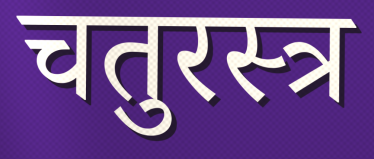
चतुरस्त्र